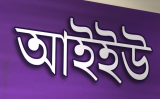
আইইউ